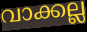
വാക്കല്ല